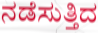
ನಡೆಸುತ್ತಿದ